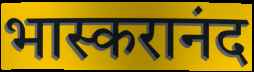
भास्करानंद